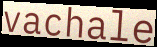
vachale